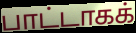
பாட்டாகக்